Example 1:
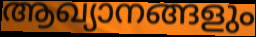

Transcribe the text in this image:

ആഖ്യാനങ്ങളും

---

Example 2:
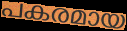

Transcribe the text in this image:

പകരമായ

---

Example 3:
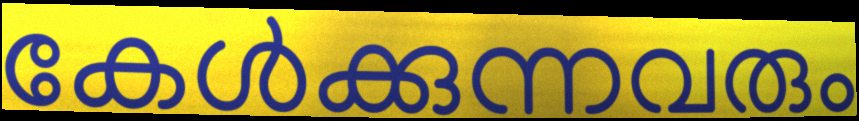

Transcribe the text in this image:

കേൾക്കുന്നവരും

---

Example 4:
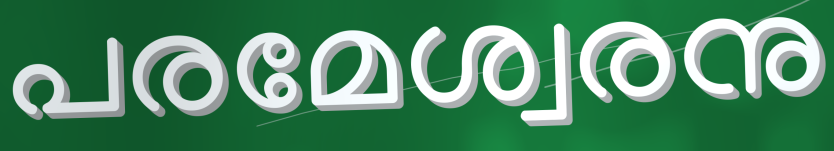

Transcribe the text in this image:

പരമേശ്വരനു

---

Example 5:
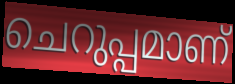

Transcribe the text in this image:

ചെറുപ്പമാണ്